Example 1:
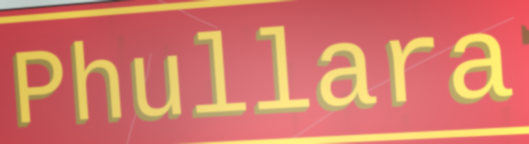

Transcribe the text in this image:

Phullara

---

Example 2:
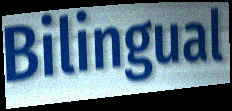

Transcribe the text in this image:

Bilingual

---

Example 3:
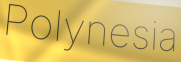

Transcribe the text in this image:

Polynesia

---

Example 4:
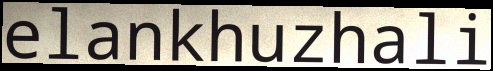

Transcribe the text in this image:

elankhuzhali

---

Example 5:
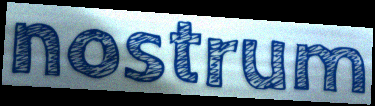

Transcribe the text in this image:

nostrum